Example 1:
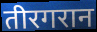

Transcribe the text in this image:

तीरगरान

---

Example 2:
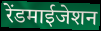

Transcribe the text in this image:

रेंडमाईजेशन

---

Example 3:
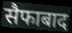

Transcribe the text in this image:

सैफाबाद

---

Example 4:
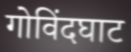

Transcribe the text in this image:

गोविंदघाट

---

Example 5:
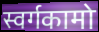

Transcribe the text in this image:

स्वर्गकामो